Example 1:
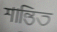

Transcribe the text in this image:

শান্তিত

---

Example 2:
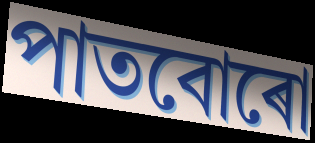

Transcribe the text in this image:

পাতবোৰো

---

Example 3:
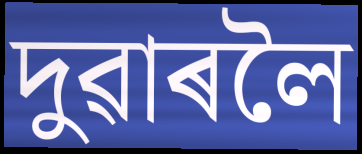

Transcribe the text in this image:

দুৱাৰলৈ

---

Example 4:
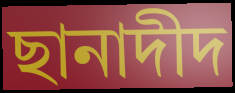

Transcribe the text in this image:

ছানাদীদ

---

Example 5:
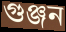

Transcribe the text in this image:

গুঞ্জন